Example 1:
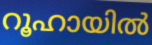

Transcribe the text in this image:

റൂഹായിൽ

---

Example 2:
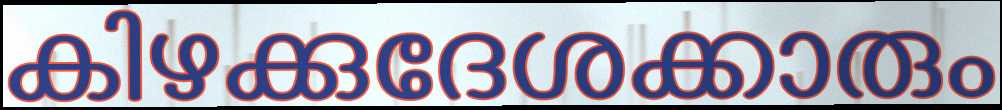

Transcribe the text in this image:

കിഴക്കുദേശക്കാരും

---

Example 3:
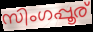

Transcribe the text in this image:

സിംഗപ്പൂര്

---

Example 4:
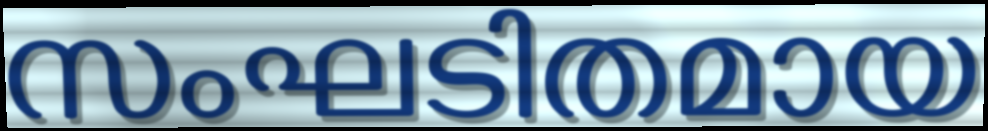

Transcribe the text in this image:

സംഘടിതമായ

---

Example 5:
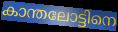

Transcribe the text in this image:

കാന്തലോട്ടിനെ